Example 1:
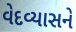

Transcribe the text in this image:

વેદવ્યાસને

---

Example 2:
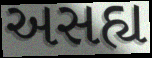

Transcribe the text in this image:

અસહ્ય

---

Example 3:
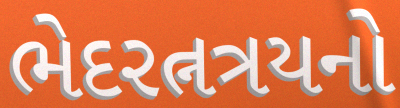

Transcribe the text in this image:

ભેદરત્નત્રયનો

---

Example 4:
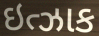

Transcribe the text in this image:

ઇત્ઝાક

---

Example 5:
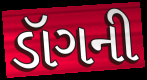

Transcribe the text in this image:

ડૉગની